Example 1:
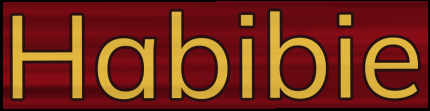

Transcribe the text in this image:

Habibie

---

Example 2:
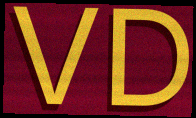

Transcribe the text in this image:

VD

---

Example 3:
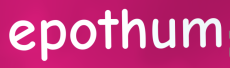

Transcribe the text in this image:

epothum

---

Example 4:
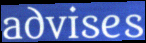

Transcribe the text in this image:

advises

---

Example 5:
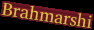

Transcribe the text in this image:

Brahmarshi